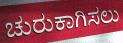
ಚುರುಕಾಗಿಸಲು